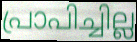
പ്രാപിച്ചില്ല